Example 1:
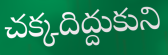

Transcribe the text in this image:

చక్కదిద్దుకుని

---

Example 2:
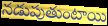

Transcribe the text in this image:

నడుపుతుంటాయి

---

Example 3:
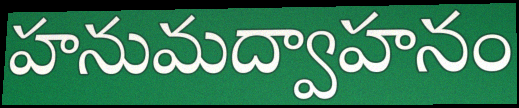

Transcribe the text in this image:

హనుమద్వాహనం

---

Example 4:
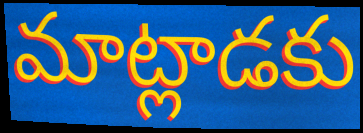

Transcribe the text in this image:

మాట్లాడకు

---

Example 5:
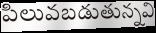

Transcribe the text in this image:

పిలువబడుతున్నవి